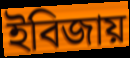
ইবিজায়